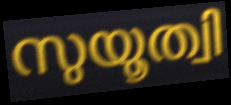
സുയൂത്വി